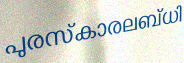
പുരസ്‌കാരലബ്ധി